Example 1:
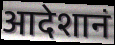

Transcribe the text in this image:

आदेशानं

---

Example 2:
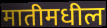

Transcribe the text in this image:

मातीमधील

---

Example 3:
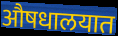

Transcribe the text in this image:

औषधालयात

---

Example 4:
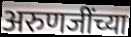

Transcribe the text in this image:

अरुणजींच्या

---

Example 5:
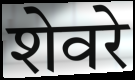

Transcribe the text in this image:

शेवरे